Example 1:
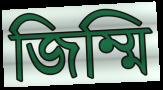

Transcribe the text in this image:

জিম্মি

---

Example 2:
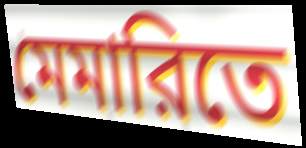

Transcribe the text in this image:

মেমারিতে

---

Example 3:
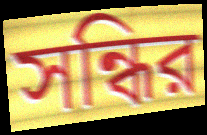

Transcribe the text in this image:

সন্ধির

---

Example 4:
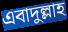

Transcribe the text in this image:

এবাদুল্লাহ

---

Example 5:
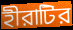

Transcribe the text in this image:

হীরাটির